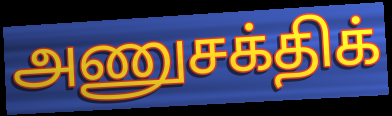
அணுசக்திக்